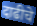
दाढीचे